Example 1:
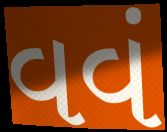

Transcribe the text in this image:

વવં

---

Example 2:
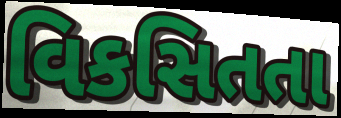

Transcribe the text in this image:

વિકસિતતા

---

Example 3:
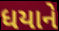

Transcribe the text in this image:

ધયાને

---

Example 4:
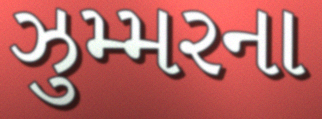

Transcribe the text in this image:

ઝુમ્મરના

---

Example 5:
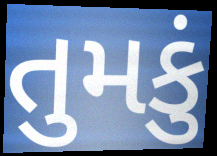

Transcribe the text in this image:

તુમકું